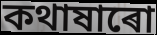
কথাষাৰো